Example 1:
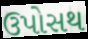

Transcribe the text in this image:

ઉપોસથ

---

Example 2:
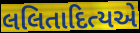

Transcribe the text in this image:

લલિતાદિત્યએ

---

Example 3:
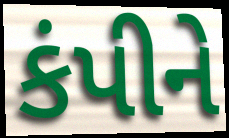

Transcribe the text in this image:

કંપીને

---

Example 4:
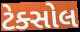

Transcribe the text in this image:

ટેક્સોલ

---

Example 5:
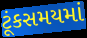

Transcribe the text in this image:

ટૂંકસમયમાં